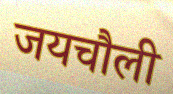
जयचौली